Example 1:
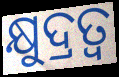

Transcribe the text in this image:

କ୍ଷୁଦ୍ରତ୍ୱ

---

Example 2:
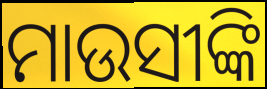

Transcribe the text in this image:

ମାଉସୀଙ୍କି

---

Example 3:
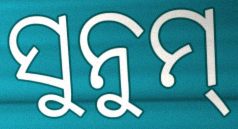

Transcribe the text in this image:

ସୁନୁମ୍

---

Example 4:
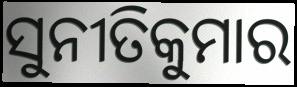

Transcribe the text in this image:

ସୁନୀତିକୁମାର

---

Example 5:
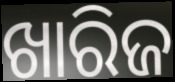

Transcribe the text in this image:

ଖାରିଜ